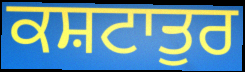
ਕਸ਼ਟਾਤੁਰ